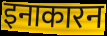
इनाकारन